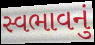
સ્વભાવનું